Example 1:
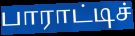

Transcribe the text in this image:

பாராட்டிச்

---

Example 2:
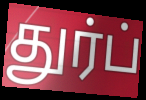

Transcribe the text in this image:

துர்ப்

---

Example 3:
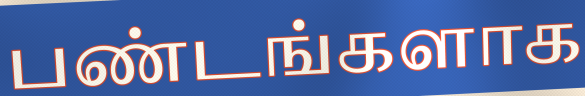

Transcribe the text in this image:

பண்டங்களாக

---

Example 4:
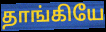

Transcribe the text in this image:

தாங்கியே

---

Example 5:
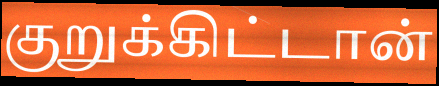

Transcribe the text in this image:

குறுக்கிட்டான்